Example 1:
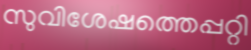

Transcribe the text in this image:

സുവിശേഷത്തെപ്പറ്റി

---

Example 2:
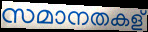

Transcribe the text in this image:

സമാനതകള്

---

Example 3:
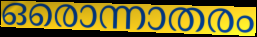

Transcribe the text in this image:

ഒരൊന്നാതരം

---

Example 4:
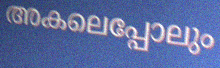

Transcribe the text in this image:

അകലെപ്പോലും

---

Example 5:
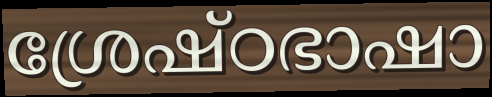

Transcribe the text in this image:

ശ്രേഷ്ഠഭാഷാ